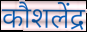
कौशलेंद्र